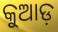
କୁଆଡ଼